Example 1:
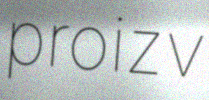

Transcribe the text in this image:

proizv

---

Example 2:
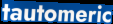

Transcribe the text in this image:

tautomeric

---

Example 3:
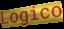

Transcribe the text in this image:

Logico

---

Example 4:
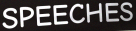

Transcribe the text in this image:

SPEECHES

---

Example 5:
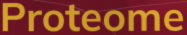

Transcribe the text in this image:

Proteome